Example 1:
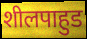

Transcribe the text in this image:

शीलपाहुड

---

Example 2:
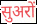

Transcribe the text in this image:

सुअरों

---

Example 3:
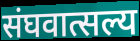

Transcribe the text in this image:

संघवात्सल्य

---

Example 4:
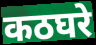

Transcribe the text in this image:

कठघरे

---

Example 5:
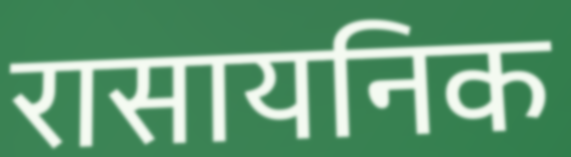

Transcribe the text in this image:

रासायनिक